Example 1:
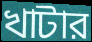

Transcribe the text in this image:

খাটার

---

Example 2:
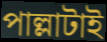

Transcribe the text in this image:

পাল্লাটাই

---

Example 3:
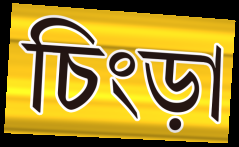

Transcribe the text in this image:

চিংড়া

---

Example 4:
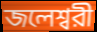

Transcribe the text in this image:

জলেশ্বরী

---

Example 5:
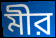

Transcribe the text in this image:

মীর